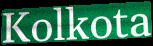
Kolkota